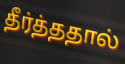
தீர்த்ததால்